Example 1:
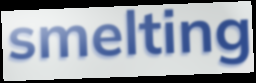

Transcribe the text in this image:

smelting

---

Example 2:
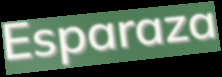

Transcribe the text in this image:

Esparaza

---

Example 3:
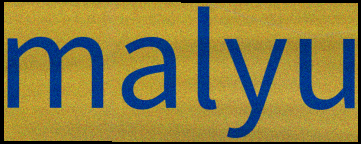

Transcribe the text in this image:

malyu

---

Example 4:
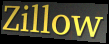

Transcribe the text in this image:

Zillow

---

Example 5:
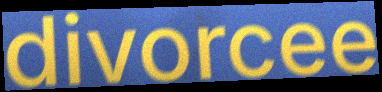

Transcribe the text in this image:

divorcee